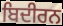
ਬਿਦੀਰਨ